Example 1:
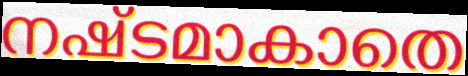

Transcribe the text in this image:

നഷ്‌ടമാകാതെ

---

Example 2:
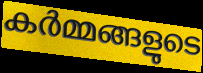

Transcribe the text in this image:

കർമ്മങ്ങളുടെ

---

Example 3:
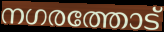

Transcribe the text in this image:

നഗരത്തോട്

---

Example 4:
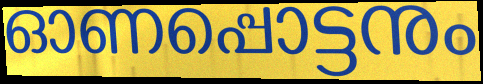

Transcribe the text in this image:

ഓണപ്പൊട്ടനും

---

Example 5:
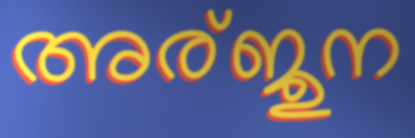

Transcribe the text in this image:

അര്ജുന